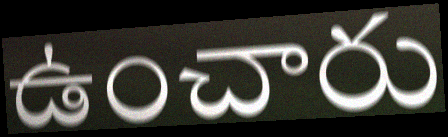
ఉంచారు